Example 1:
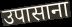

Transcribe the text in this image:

उपासाना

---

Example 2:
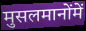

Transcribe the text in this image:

मुसलमानोंमें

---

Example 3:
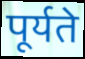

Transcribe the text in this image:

पूर्यते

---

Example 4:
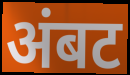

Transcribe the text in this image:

अंबट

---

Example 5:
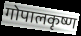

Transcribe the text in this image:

गोपालकृष्ण